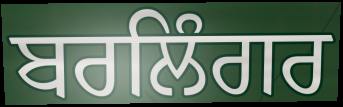
ਬਰਲਿੰਗਰ